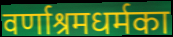
वर्णाश्रमधर्मका